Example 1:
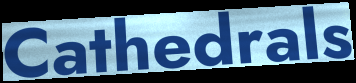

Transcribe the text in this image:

Cathedrals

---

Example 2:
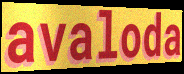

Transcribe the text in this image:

avaloda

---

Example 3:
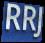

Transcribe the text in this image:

RRJ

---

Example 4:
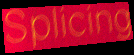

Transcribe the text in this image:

Splicing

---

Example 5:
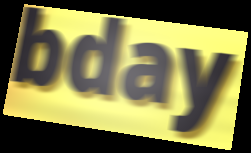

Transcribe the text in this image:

bday